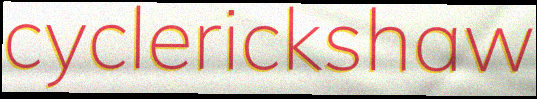
cyclerickshaw